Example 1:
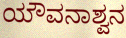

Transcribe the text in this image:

ಯೌವನಾಶ್ವನ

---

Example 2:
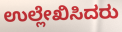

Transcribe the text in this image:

ಉಲ್ಲೇಖಿಸಿದರು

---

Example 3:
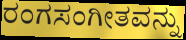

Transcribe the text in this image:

ರಂಗಸಂಗೀತವನ್ನು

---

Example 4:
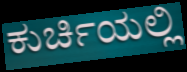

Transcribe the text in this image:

ಕುರ್ಚಿಯಲ್ಲಿ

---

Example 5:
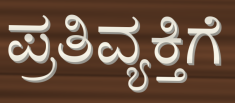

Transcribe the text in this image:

ಪ್ರತಿವ್ಯಕ್ತಿಗೆ